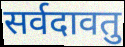
सर्वदावतु